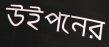
উইপনের